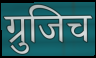
ग्रुजिच